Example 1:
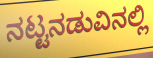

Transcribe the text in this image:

ನಟ್ಟನಡುವಿನಲ್ಲಿ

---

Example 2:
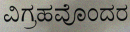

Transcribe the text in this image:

ವಿಗ್ರಹವೊಂದರ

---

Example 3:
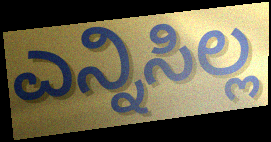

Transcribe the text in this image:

ಎನ್ನಿಸಿಲ್ಲ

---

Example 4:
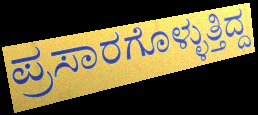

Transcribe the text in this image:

ಪ್ರಸಾರಗೊಳ್ಳುತ್ತಿದ್ದ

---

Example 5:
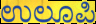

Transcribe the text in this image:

ಉಲೂಪಿ